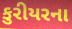
કુરીયરના